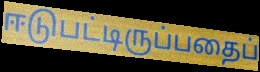
ஈடுபட்டிருப்பதைப்